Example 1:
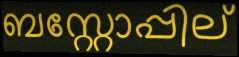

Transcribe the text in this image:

ബസ്റ്റോപ്പില്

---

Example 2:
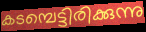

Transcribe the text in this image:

കടമ്പെട്ടിരിക്കുന്നു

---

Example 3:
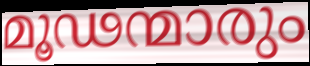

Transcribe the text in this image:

മൂഢന്മാരും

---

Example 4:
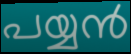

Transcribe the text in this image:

പയ്യൻ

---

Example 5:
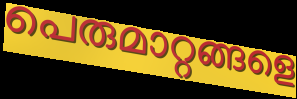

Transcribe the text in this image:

പെരുമാറ്റങ്ങളെ